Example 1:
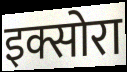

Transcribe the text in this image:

इक्सोरा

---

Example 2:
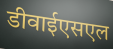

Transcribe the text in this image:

डीवाईएसएल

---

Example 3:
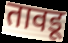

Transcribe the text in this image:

तावडू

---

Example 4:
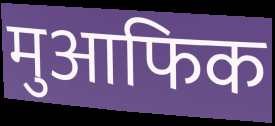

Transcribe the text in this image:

मुआफिक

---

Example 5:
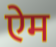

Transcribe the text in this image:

ऐम